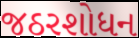
જઠરશોધન